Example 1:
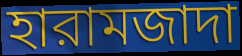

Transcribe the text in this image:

হারামজাদা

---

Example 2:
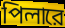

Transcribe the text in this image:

পিলারে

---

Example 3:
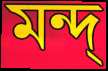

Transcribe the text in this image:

মন্দ্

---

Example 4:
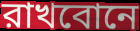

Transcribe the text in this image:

রাখবোনে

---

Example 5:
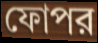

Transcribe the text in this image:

ফোপর